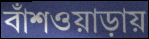
বাঁশওয়াড়ায়